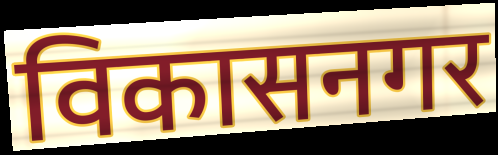
विकासनगर